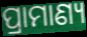
ପ୍ରାମାଣ୍ୟ